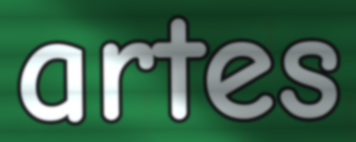
artes